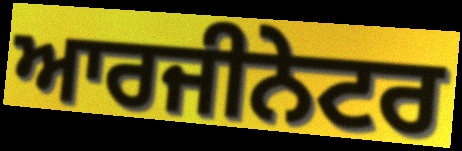
ਆਰਜੀਨੇਟਰ